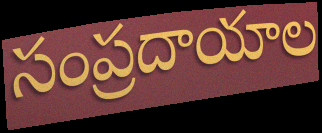
సంప్రదాయాల